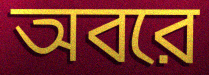
অবরে